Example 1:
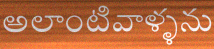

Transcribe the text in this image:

అలాంటివాళ్ళను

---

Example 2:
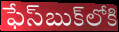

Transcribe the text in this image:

ఫేస్‌బుక్‌లోకి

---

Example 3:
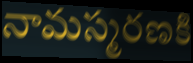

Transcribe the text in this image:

నామస్మరణకి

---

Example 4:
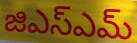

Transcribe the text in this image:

జిఎస్ఎమ్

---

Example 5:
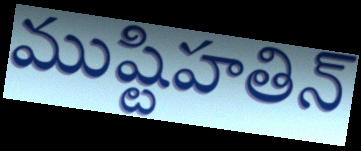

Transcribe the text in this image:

ముష్టిహతిన్